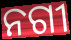
ନଗୀ